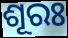
ଶୂରଃ